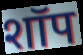
शॉप